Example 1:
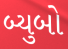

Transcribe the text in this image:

બ્યુબો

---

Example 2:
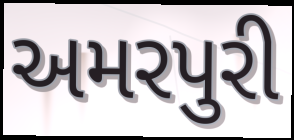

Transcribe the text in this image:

અમરપુરી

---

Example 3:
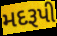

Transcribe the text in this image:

મદરૂપી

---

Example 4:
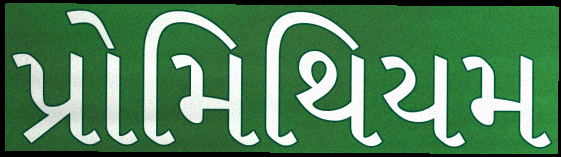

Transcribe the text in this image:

પ્રોમિથિયમ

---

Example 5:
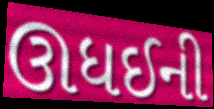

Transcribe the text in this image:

ઊધઈની